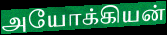
அயோக்கியன்